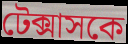
টেক্সাসকে